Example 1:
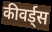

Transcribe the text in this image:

कीवर्ड्स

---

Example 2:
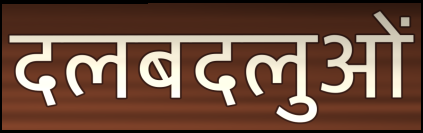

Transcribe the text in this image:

दलबदलुओं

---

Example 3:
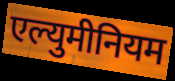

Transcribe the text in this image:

एल्युमीनियम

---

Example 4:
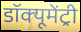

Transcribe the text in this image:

डॉक्‍यूमेंट्री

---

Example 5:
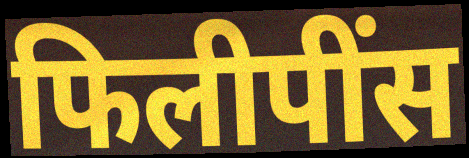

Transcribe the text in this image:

फिलीपींस